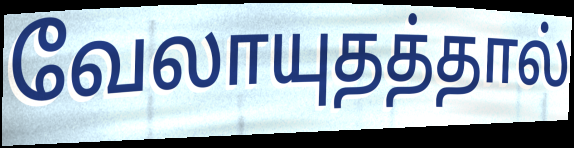
வேலாயுதத்தால்